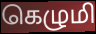
கெழுமி